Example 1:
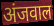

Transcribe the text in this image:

अंजवाल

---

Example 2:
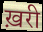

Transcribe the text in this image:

ख़री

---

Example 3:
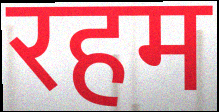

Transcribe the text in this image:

रहम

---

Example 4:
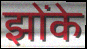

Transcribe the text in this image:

झोंके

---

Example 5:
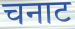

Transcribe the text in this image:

चनाट